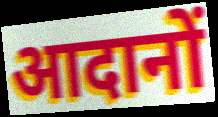
आदानों